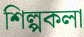
শিল্পকলা